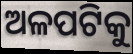
ଅଳପଟିକୁ